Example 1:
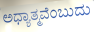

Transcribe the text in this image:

ಅಧ್ಯಾತ್ಮವೆಂಬುದು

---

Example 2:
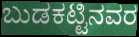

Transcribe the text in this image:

ಬುಡಕಟ್ಟಿನವರ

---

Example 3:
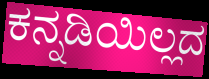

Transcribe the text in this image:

ಕನ್ನಡಿಯಿಲ್ಲದ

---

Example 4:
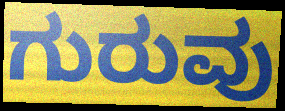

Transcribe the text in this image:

ಗುರುವು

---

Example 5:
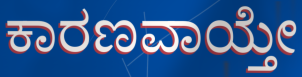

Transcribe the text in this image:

ಕಾರಣವಾಯ್ತೇ